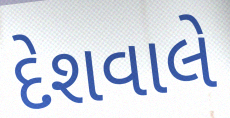
દેશવાલે